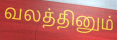
வலத்தினும்